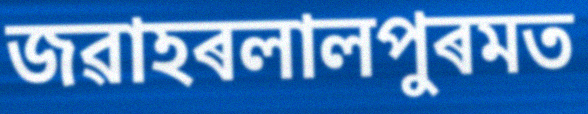
জৱাহৰলালপুৰমত